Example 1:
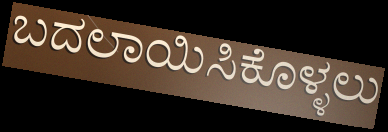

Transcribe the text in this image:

ಬದಲಾಯಿಸಿಕೊಳ್ಳಲು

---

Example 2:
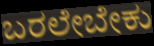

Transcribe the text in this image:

ಬರಲೇಬೇಕು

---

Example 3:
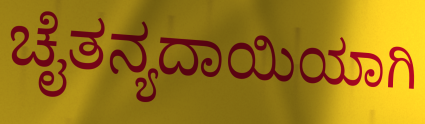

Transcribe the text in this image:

ಚೈತನ್ಯದಾಯಿಯಾಗಿ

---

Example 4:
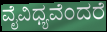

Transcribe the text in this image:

ವೈವಿಧ್ಯವೆಂದರೆ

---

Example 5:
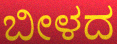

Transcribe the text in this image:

ಬೀಳದ